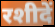
रशीदें